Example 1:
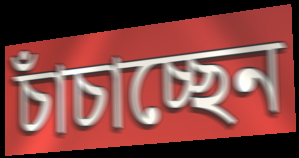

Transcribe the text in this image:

চাঁচাচ্ছেন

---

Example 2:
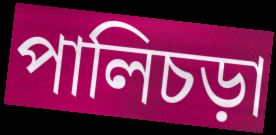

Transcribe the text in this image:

পালিচড়া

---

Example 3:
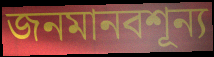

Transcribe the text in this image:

জনমানবশূন্য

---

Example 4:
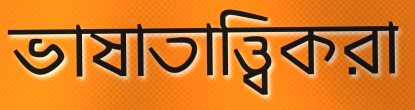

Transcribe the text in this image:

ভাষাতাত্ত্বিকরা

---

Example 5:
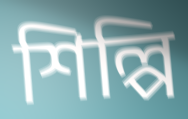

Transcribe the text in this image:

শিল্পি